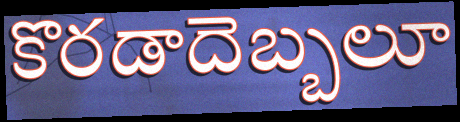
కొరడాదెబ్బలూ